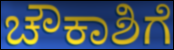
ಚೌಕಾಶಿಗೆ